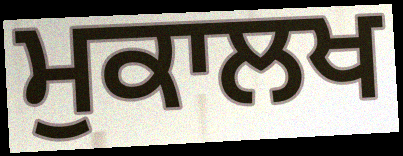
ਮੁਕਾਲਖ